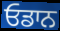
ਓਡਾਨ